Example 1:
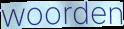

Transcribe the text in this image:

woorden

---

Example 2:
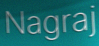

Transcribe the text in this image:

Nagraj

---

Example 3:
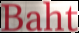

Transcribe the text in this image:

Baht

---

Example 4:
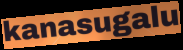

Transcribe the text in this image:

kanasugalu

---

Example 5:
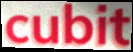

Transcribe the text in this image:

cubit